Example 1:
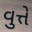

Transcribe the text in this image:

વુત્તે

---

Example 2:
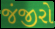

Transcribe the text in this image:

જંજીરો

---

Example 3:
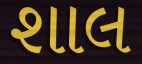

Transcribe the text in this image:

શાલ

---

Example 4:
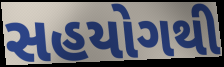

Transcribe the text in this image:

સહયોગથી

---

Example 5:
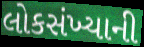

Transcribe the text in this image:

લોકસંખ્યાની